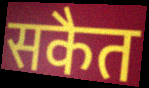
सकैत